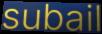
subail